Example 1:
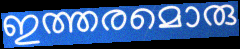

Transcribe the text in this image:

ഇത്തരമൊരു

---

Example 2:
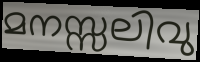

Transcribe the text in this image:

മനസ്സലിവു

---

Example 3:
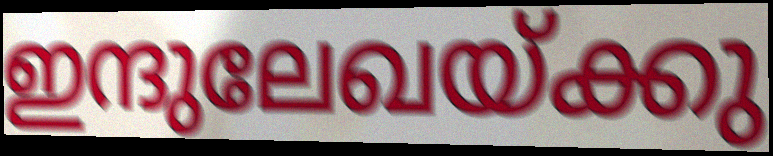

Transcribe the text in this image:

ഇന്ദുലേഖയ്ക്കു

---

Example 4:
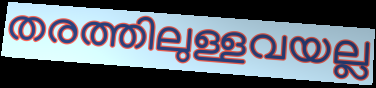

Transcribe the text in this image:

തരത്തിലുള്ളവയല്ല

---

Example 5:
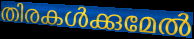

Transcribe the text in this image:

തിരകൾക്കുമേൽ